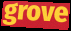
grove